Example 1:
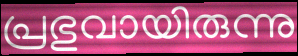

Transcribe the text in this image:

പ്രഭുവായിരുന്നു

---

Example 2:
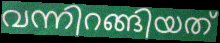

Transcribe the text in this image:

വന്നിറങ്ങിയത്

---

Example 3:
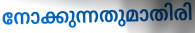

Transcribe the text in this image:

നോക്കുന്നതുമാതിരി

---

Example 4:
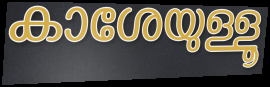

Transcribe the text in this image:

കാശേയുള്ളൂ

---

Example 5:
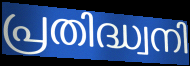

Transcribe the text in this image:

പ്രതിദ്ധ്വനി